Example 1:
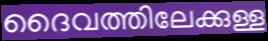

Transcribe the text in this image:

ദൈവത്തിലേക്കുള്ള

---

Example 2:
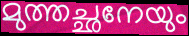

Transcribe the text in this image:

മുത്തച്ഛനേയും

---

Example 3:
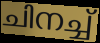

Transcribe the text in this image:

ചിനച്ച്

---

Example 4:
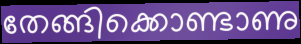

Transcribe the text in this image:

തേങ്ങിക്കൊണ്ടാണു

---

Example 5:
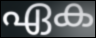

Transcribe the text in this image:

ഏക